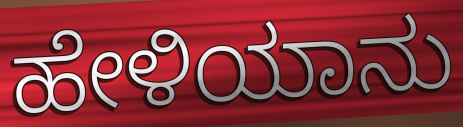
ಹೇಳಿಯಾನು